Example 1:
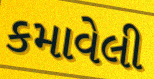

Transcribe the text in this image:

કમાવેલી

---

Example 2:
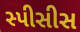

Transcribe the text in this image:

સ્પીસીસ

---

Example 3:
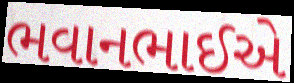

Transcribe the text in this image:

ભવાનભાઈએ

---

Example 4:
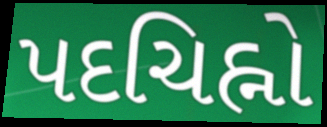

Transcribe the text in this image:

પદચિહ્નો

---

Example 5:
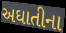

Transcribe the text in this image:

અઘાતીના